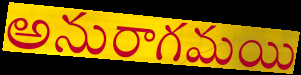
అనురాగమయి